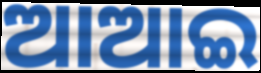
ଆଆଇ